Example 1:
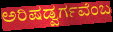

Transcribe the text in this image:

ಅರಿಷಡ್ವರ್ಗವೆಂಬ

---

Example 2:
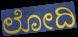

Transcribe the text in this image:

ಲೋದಿ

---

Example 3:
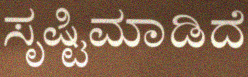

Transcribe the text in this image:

ಸೃಷ್ಟಿಮಾಡಿದೆ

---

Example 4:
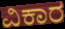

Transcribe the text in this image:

ವಿಕಾರ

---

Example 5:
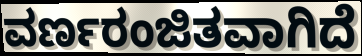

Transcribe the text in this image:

ವರ್ಣರಂಜಿತವಾಗಿದೆ